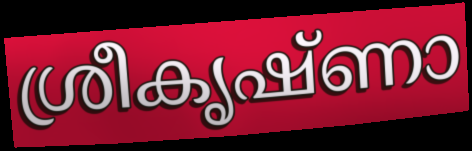
ശ്രീകൃഷ്ണാ